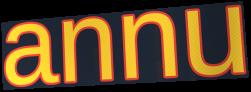
annu